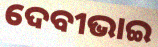
ଦେବୀଭାଇ